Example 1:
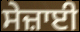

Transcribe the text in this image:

ਸੇਜ਼ਾਈ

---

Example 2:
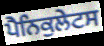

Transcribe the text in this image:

ਪੈਨਿਕੁਲੇਟਸ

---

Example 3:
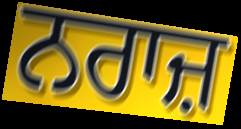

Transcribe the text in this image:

ਨਰਾਜ਼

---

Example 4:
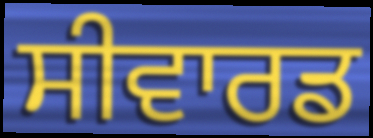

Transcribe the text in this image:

ਸੀਵਾਰਡ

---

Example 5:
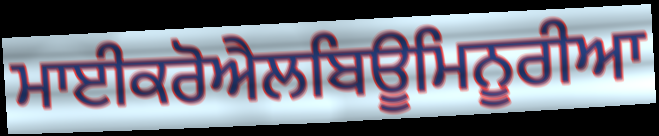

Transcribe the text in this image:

ਮਾਈਕਰੋਐਲਬਿਊਮਿਨੂਰੀਆ